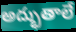
అద్భుతాలే